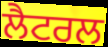
ਲੈਟਰਲ